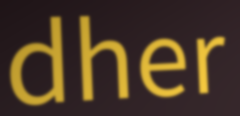
dher